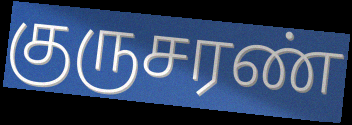
குருசரண்